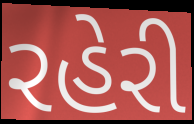
રહેરી